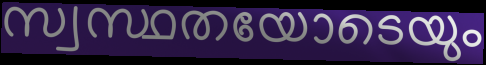
സ്വസ്ഥതയോടെയും